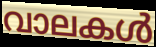
വാലകൾ